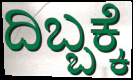
ದಿಬ್ಬಕ್ಕೆ